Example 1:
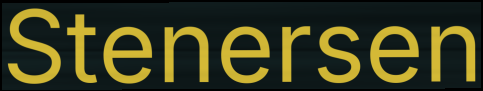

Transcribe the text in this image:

Stenersen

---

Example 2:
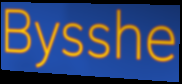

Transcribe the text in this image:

Bysshe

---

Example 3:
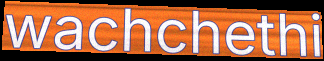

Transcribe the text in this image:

wachchethi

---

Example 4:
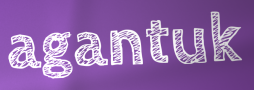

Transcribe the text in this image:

agantuk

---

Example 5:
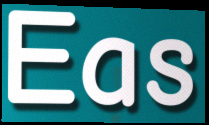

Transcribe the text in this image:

Eas